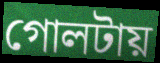
গোলটায়